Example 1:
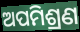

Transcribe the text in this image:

ଅପମିଶ୍ରଣ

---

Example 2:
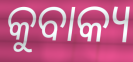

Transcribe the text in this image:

କୁବାକ୍ୟ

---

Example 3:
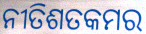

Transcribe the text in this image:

ନୀତିଶତକମର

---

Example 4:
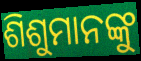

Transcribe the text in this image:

ଶିଶୁମାନଙ୍କୁ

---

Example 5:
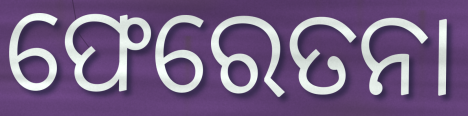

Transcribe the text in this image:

ଫେରେତନା